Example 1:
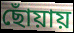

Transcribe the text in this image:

ছোঁয়ায়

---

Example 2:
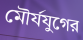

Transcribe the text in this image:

মৌর্যযুগের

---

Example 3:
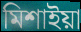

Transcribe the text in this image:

মিশাইয়া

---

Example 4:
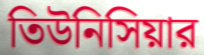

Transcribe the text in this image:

তিউনিসিয়ার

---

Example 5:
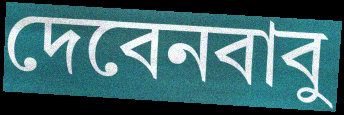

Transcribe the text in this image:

দেবেনবাবু